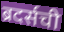
ब्रदर्सची